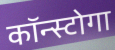
कॉन्स्टोगा